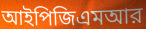
আইপিজিএমআর